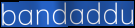
bandaddu